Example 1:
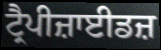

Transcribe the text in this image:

ਟ੍ਰੈਪੀਜ਼ਾਈਡਜ਼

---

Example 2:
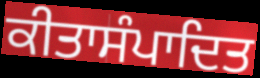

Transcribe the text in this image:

ਕੀਤਾਸੰਪਾਦਿਤ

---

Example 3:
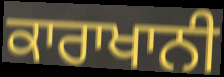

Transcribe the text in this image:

ਕਾਰਾਖਾਨੀ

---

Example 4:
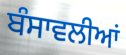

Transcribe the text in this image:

ਬੰਸਾਵਲੀਆਂ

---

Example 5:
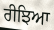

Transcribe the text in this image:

ਰੀਝਿਆ